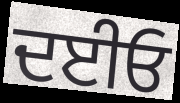
ਦਈਓ